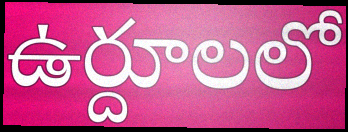
ఉర్దూలలో